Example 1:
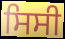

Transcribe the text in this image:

ਸਿਸੀ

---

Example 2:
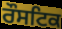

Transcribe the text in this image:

ਰੌਸਟਿਕ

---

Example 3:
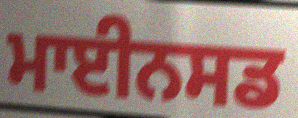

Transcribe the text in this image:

ਮਾਈਨਸਡ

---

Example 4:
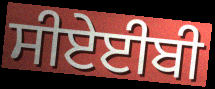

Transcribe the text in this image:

ਸੀਏਈਬੀ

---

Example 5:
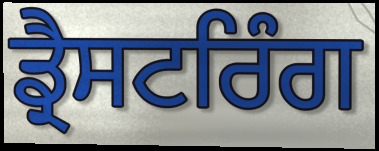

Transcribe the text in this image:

ਡ੍ਰੈਸਟਰਿੰਗ